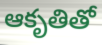
ఆకృతితో